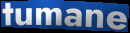
tumane